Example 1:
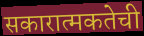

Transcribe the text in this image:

सकारात्मकतेची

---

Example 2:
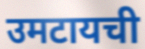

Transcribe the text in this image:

उमटायची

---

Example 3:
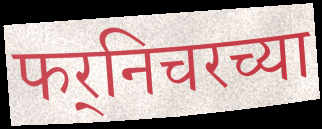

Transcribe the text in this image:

फर्निचरच्या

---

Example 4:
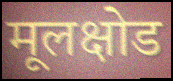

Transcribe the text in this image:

मूलक्षोड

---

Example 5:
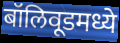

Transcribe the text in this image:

बॉलिवूडमध्ये